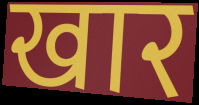
खार